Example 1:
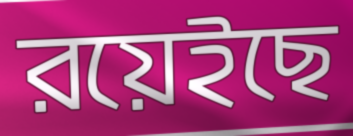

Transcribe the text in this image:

রয়েইছে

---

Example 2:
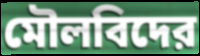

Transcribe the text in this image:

মৌলবিদের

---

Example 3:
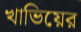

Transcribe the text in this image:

খাভিয়ের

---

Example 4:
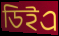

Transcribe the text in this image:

ডিইএ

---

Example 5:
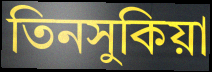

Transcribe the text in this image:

তিনসুকিয়া